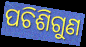
ପଚିଶିଗୁଣ